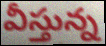
వీస్తున్న